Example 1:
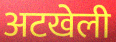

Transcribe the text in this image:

अटखेली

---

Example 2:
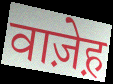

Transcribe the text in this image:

वाज़ेह़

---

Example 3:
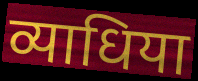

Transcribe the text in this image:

व्याधिया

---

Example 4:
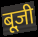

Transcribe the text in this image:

बूज़ी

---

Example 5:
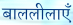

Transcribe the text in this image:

बाललीलाएँ